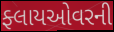
ફ્લાયઓવરની